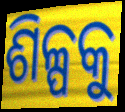
ଶିଳ୍ପକୁ